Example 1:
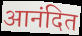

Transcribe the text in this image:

आनंदित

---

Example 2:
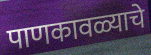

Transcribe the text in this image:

पाणकावळ्याचे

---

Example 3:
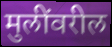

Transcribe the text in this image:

मुलींवरील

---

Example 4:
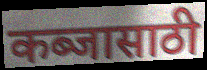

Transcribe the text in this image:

कब्जासाठी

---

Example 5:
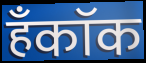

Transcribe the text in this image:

हँकॉक